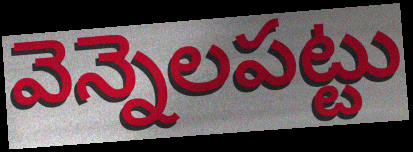
వెన్నెలపట్టు